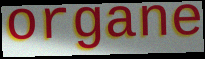
organe